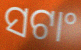
ସଟାଂ